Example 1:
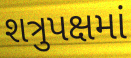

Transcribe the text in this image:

શત્રુપક્ષમાં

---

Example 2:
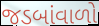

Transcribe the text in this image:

જડબાંવાળો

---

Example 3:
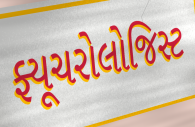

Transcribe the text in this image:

ફ્યૂચરોલોજિસ્ટ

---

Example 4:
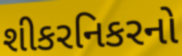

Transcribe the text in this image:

શીકરનિકરનો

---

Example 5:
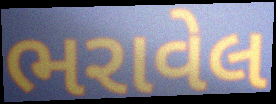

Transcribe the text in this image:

ભરાવેલ